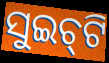
ସୁଇଚ୍‌ଟି